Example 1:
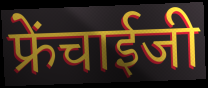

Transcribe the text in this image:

फ्रेंचाईजी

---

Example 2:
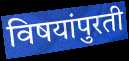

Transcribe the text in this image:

विषयांपुरती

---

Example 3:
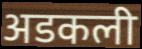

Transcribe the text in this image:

अडकली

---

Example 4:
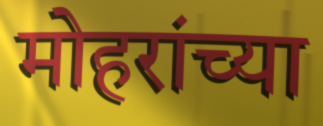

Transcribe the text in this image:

मोहरांच्या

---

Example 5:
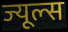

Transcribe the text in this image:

ज्यूल्स